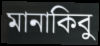
মানাকিবু